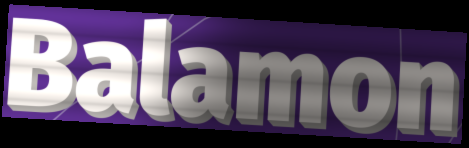
Balamon